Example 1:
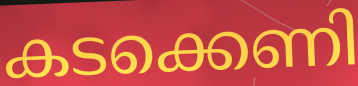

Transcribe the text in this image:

കടക്കെണി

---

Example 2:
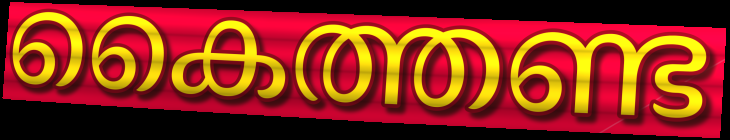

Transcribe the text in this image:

കൈത്തണ്ട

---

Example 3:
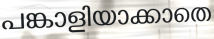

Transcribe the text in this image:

പങ്കാളിയാക്കാതെ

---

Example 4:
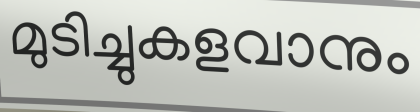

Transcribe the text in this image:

മുടിച്ചുകളവാനും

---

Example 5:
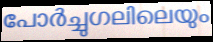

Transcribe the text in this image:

പോർച്ചുഗലിലെയും